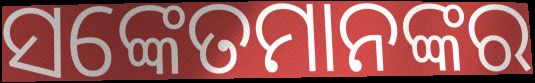
ସଙ୍କେତମାନଙ୍କର